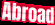
Abroad